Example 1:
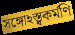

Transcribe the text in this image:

সঙ্গোঽস্ত্বকর্মণি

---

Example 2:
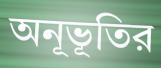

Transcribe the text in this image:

অনূভূতির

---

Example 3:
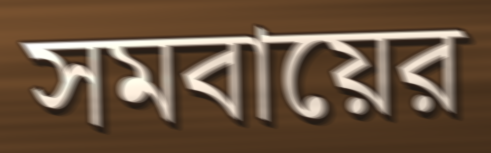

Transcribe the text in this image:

সমবায়ের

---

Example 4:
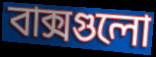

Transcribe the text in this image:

বাক্সগুলো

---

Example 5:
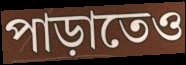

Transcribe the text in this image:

পাড়াতেও